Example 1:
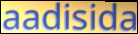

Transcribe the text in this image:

aadisida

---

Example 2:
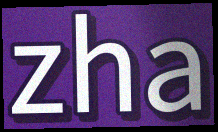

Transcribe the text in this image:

zha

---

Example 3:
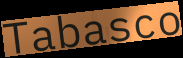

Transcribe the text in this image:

Tabasco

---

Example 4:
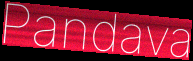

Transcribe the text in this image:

Pandava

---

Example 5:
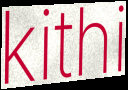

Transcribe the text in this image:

kithi